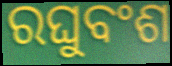
ରଘୁବଂଶ